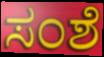
ಸಂಶೆ